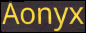
Aonyx